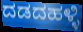
ದಡದಹಳ್ಳಿ